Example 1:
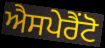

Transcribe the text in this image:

ਐਸਪੇਰੈਂਟੋ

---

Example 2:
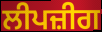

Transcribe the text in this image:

ਲੀਪਜ਼ੀਗ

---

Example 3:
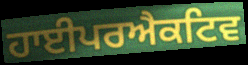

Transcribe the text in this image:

ਹਾਈਪਰਐਕਟਿਵ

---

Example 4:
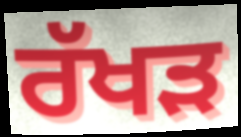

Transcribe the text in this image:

ਰੱਖੜ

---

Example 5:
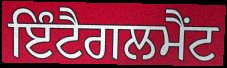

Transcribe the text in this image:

ਇੰਟੈਗਲਮੈਂਟ